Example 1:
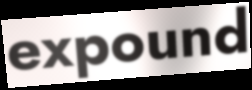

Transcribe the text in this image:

expound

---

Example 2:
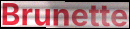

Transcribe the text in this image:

Brunette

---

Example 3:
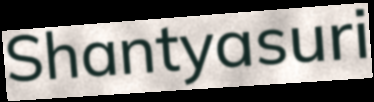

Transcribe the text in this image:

Shantyasuri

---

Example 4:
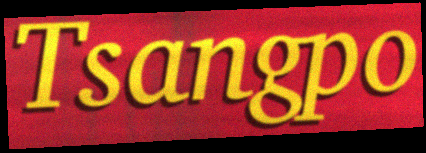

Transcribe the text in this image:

Tsangpo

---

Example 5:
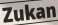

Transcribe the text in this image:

Zukan